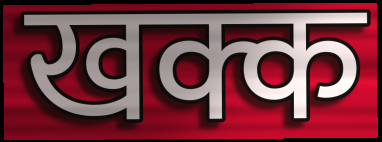
खक्क